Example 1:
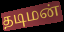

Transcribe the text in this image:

தடிமன்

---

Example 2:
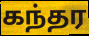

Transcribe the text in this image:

கந்தர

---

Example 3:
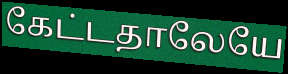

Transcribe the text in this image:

கேட்டதாலேயே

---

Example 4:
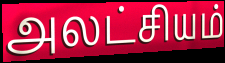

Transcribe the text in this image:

அலட்சியம்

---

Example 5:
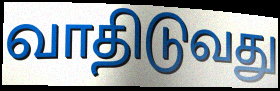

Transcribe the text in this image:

வாதிடுவது